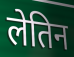
लेतिन